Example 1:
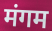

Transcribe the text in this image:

मंगम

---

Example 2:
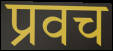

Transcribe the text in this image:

प्रवच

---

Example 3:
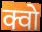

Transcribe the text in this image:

क्वो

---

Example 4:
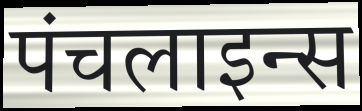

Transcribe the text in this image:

पंचलाइन्स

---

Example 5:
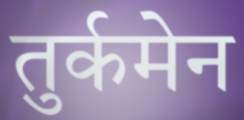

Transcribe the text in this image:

तुर्कमेन